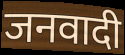
जनवादी